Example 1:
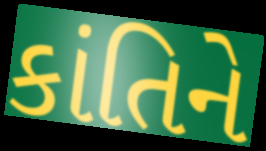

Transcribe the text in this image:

કાંતિને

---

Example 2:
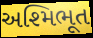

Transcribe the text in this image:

અશ્મિભૂત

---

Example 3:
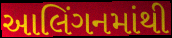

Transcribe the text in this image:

આલિંગનમાંથી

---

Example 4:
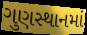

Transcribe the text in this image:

ગુણસ્થાનમાં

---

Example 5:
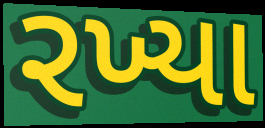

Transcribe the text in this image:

રખ્યા